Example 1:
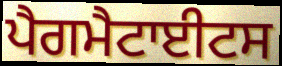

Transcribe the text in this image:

ਪੈਗਮੈਟਾਈਟਸ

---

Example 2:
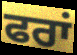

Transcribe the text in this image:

ਫਰਾਂ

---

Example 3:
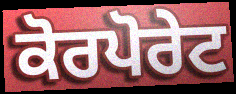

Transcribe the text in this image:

ਕੋਰਪੋਰੇਟ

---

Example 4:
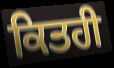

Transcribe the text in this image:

ਕਿਤਹੀ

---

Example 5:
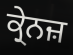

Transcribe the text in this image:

ਕ੍ਰੇਨਜ਼